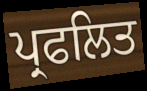
ਪ੍ਰਫਲਿਤ